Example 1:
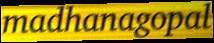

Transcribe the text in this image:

madhanagopal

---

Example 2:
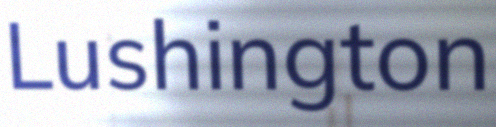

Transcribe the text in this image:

Lushington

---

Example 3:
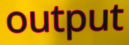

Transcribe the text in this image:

output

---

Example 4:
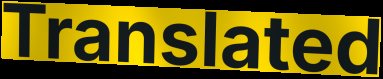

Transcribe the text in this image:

Translated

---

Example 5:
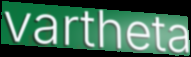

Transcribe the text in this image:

vartheta